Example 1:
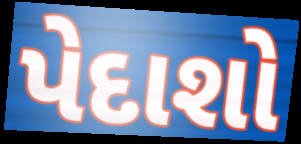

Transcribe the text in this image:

પેદાશો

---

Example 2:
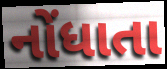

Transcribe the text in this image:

નોંધાતા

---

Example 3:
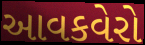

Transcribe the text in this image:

આવકવેરો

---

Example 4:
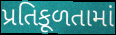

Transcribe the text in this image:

પ્રતિકૂળતામાં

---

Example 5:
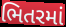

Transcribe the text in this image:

ભિતરમાં